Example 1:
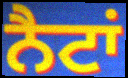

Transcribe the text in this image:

ਨੈਟਾਂ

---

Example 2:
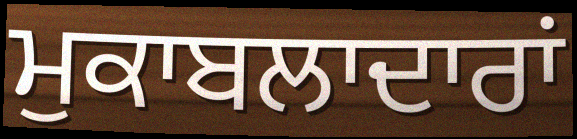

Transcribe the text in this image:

ਮੁਕਾਬਲਾਦਾਰਾਂ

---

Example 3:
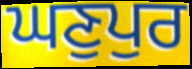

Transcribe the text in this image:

ਘਣੁਪੁਰ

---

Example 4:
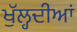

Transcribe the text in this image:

ਖੁੱਲ੍ਹਦੀਆਂ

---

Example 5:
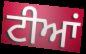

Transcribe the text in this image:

ਟੀਆਂ